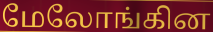
மேலோங்கின